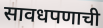
सावधपणाची